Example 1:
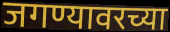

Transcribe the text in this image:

जगण्यावरच्या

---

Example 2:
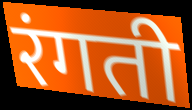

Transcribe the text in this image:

रंगती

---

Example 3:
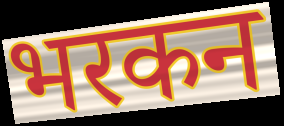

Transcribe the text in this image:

भरकन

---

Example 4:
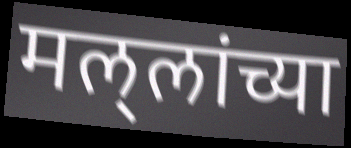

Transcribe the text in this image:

मल्लांच्या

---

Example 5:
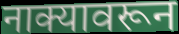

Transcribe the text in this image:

नाक्यावरून